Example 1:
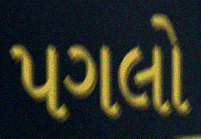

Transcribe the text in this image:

પગલો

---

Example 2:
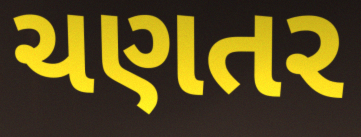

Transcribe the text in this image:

ચણતર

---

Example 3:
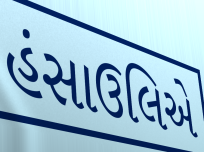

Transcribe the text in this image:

હંસાઉલિએ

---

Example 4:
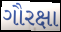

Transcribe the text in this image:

ગૌરક્ષા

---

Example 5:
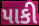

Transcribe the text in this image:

પાકી